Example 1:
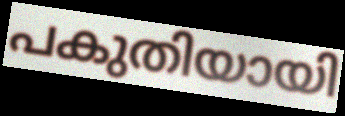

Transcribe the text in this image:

പകുതിയായി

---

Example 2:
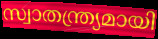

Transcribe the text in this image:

സ്വാതന്ത്ര്യമായി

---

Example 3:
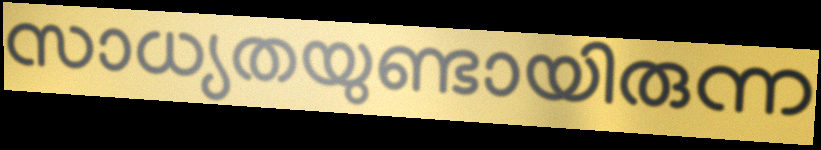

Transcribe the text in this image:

സാധ്യതയുണ്ടായിരുന്ന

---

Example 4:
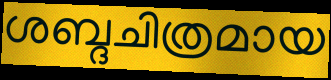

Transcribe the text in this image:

ശബ്ദചിത്രമായ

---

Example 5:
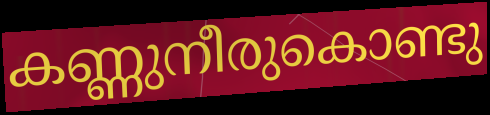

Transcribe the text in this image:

കണ്ണുനീരുകൊണ്ടു